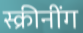
स्क्रीनींग